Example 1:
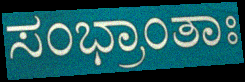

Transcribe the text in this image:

ಸಂಭ್ರಾಂತಾಃ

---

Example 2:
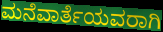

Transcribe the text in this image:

ಮನೆವಾರ್ತೆಯವರಾಗಿ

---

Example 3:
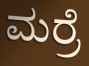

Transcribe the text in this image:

ಮರ್ರೆ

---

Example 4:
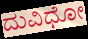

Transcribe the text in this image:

ದುವಿಧೋ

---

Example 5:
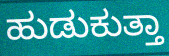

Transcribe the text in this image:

ಹುಡುಕುತ್ತಾ